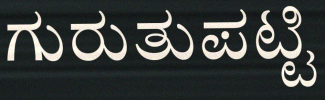
ಗುರುತುಪಟ್ಟಿ